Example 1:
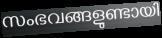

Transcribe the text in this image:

സംഭവങ്ങളുണ്ടായി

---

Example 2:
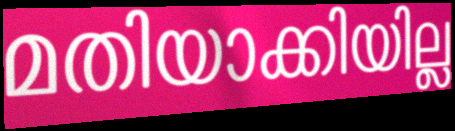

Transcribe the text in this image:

മതിയാക്കിയില്ല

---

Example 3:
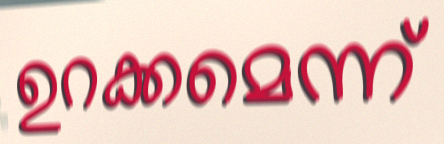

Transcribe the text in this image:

ഉറക്കമെന്ന്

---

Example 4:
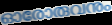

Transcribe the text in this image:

ഓരോരുവനും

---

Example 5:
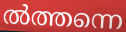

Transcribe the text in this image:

ൽത്തന്നെ